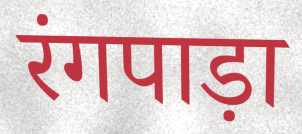
रंगपाड़ा